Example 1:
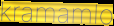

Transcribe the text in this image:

kramamlo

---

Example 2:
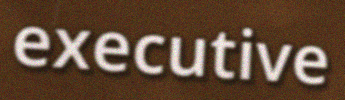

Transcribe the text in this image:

executive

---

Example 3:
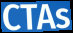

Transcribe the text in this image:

CTAs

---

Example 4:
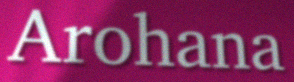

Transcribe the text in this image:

Arohana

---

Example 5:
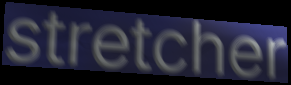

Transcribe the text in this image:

stretcher